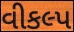
વીકલ્પ